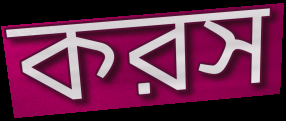
করস